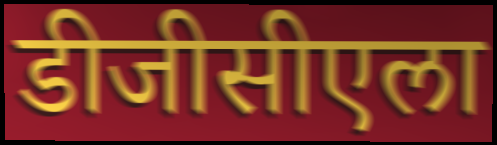
डीजीसीएला